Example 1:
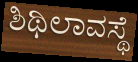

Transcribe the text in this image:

ಶಿಥಿಲಾವಸ್ಥೆ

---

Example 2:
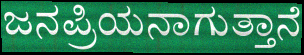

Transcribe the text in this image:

ಜನಪ್ರಿಯನಾಗುತ್ತಾನೆ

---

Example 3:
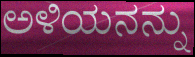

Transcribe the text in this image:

ಅಳಿಯನನ್ನು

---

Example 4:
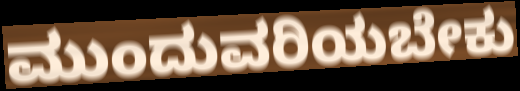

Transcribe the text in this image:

ಮುಂದುವರಿಯಬೇಕು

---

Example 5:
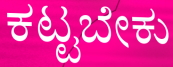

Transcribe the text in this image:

ಕಟ್ಟಬೇಕು